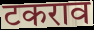
टकराव